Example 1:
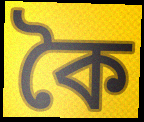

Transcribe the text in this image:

কৈ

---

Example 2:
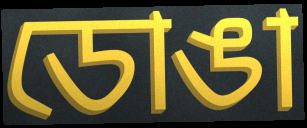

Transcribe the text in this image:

ডোঙা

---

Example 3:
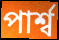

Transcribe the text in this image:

পাৰ্শ্ব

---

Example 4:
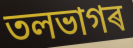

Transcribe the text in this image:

তলভাগৰ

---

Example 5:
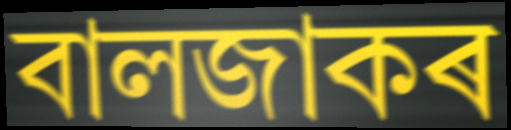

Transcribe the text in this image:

বালজাকৰ